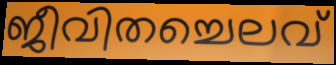
ജീവിതച്ചെലവ്